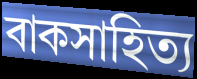
বাকসাহিত্য